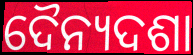
ଦୈନ୍ୟଦଶା